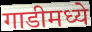
गाडीमध्ये